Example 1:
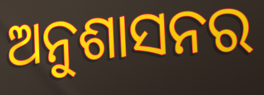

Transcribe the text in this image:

ଅନୁଶାସନର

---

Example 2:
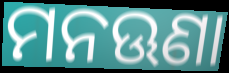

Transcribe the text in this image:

ମନଊଣା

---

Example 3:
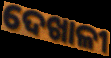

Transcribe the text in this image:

ଦେଖାଳୀ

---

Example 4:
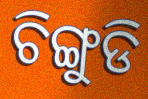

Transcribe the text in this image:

ଚିଙ୍ଗୁଡି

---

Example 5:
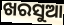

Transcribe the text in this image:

ଖରସୁଆ